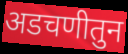
अडचणीतुन